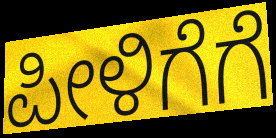
ಪೀಳಿಗೆಗೆ